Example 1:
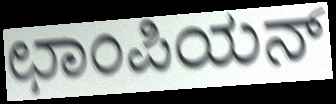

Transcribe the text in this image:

ಛಾಂಪಿಯನ್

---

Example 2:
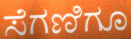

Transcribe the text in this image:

ಸೆಗಣಿಗೂ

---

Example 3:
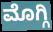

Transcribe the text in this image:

ಮೊಗ್ಗಿ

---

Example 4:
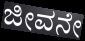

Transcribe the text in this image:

ಜೀವನೇ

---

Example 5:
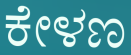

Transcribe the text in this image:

ಕೇಳಣ